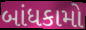
બાંધકામો